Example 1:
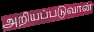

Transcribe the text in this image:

அறியப்படுவான்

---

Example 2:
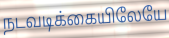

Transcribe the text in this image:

நடவடிக்கையிலேயே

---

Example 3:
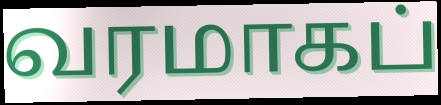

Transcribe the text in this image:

வரமாகப்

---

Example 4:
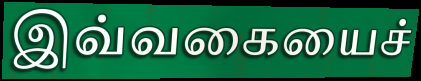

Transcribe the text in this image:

இவ்வகையைச்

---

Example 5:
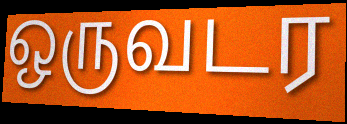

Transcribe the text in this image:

ஒருவடர